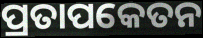
ପ୍ରତାପକେତନ